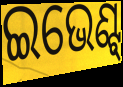
ଇଭେଣ୍ଟ୍